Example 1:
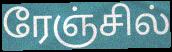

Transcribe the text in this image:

ரேஞ்சில்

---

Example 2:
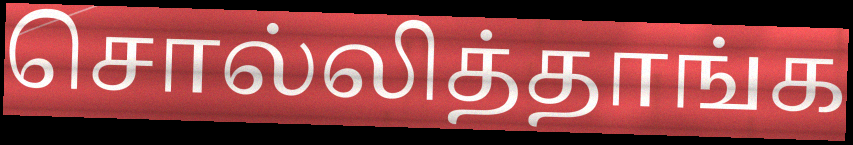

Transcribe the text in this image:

சொல்லித்தாங்க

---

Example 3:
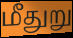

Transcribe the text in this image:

மீதுறு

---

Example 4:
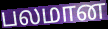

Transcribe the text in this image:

பலமான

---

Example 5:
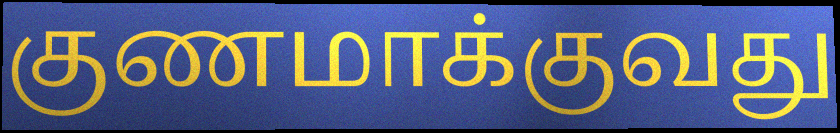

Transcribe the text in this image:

குணமாக்குவது